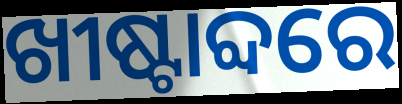
ଖୀଷ୍ଟାବ୍ଦରେ